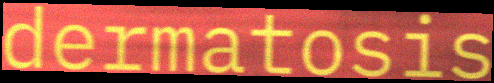
dermatosis